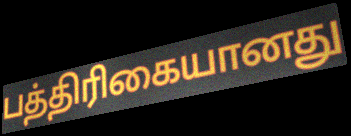
பத்திரிகையானது